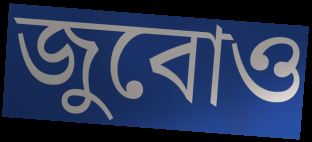
জুবোও